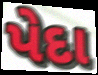
પેદા